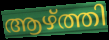
ആഴ്ത്തി